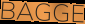
BAGGE